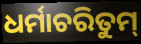
ଧର୍ମାଚରିତୁମ୍